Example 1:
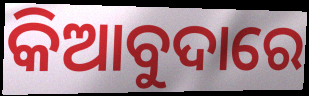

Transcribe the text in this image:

କିଆବୁଦାରେ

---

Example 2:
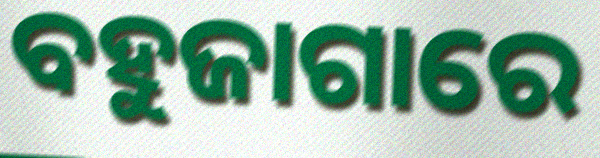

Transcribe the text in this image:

ବହୁଜାଗାରେ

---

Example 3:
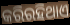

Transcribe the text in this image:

କରିରହିଥାଏ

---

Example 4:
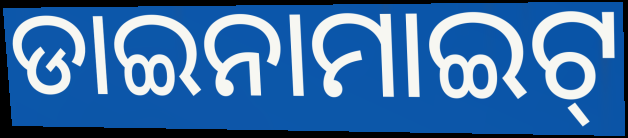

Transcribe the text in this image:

ଡାଇନାମାଇଟ୍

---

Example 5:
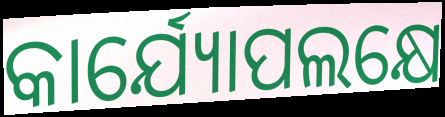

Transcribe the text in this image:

କାର୍ଯ୍ୟୋପଲକ୍ଷେ